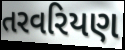
તરવરિયણ